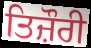
ਤਿਜ਼ੌਰੀ